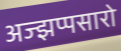
अज्झप्पसारो